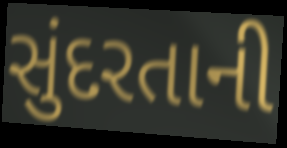
સુંદરતાની